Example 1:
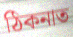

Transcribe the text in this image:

ঠিকনাত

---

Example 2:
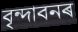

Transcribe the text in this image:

বৃন্দাবনৰ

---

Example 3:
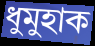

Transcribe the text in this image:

ধুমুহাক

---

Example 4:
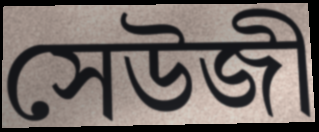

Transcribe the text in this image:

সেউজী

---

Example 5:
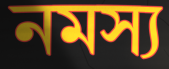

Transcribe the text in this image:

নমস্য